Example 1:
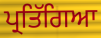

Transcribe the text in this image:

ਪ੍ਰਤਿੱਗਿਆ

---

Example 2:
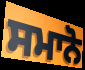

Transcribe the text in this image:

ਸਮਾਨੋ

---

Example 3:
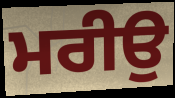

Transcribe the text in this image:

ਮਰੀਉ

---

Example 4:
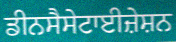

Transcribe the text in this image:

ਡੀਨਸੈਸੇਟਾਈਜ਼ੇਸ਼ਨ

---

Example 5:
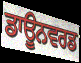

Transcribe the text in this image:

ਡਾਊਨਵਰਡ